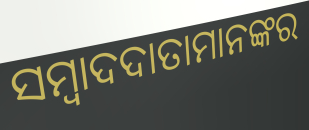
ସମ୍ବାଦଦାତାମାନଙ୍କର